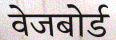
वेजबोर्ड